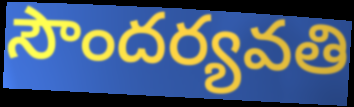
సౌందర్యవతి